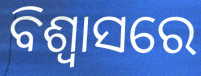
ବିଶ୍ୱାସରେ